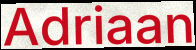
Adriaan